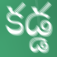
కడ్డ